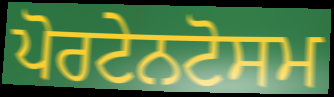
ਪੋਰਟੇਨਟੋਸਮ